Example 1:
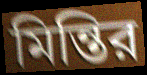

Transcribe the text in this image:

মিন্তির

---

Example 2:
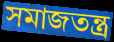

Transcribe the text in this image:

সমাজতন্ত্র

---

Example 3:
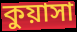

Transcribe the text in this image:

কুয়াসা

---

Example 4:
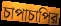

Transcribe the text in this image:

চাপাচাপির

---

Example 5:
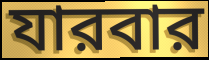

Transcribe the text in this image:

যারবার